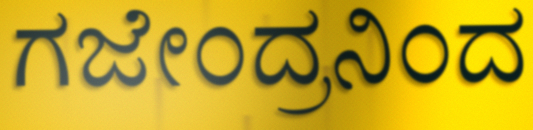
ಗಜೇಂದ್ರನಿಂದ